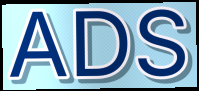
ADS